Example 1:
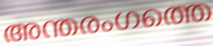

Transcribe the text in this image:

അന്തരംഗത്തെ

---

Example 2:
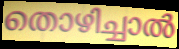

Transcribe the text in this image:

തൊഴിച്ചാൽ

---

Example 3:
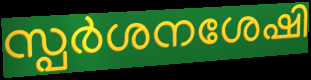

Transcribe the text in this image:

സ്പർശനശേഷി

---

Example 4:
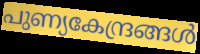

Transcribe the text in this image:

പുണ്യകേന്ദ്രങ്ങൾ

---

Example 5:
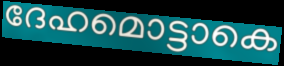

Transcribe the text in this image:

ദേഹമൊട്ടാകെ